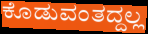
ಕೊಡುವಂತದ್ದಲ್ಲ